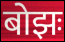
बोझः